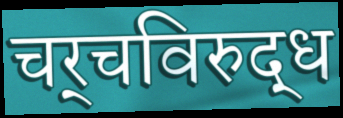
चर्चविरुद्ध